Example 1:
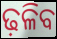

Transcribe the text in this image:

ଢ଼ଳିବ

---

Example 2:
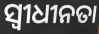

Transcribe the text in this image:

ସ୍ୱୀଧୀନତା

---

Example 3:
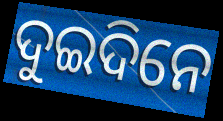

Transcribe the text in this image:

ଦୁଇଦିନେ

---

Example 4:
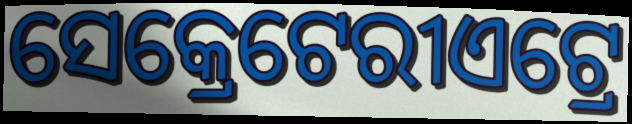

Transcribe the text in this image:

ସେକ୍ରେଟେରୀଏଟ୍ରେ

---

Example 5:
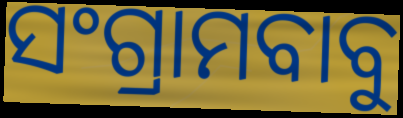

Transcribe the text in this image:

ସଂଗ୍ରାମବାବୁ